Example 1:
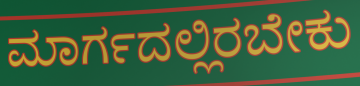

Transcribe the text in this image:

ಮಾರ್ಗದಲ್ಲಿರಬೇಕು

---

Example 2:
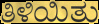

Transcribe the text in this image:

ತಿಳಿಯಿತು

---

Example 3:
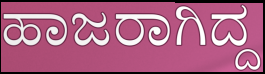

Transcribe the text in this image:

ಹಾಜರಾಗಿದ್ದ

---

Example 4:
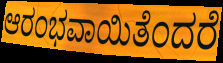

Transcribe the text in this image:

ಆರಂಭವಾಯಿತೆಂದರೆ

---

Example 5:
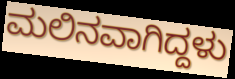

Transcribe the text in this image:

ಮಲಿನವಾಗಿದ್ದಳು